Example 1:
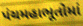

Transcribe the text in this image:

પંચમહાભૂતોમાં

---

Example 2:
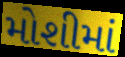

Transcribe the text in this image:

મોશીમાં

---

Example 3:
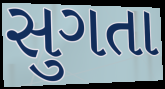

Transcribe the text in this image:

સુગતા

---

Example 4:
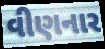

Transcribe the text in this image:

વીણનાર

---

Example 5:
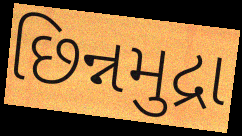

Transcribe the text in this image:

છિન્નમુદ્રા